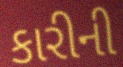
કારીની